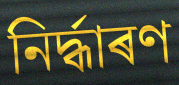
নিৰ্দ্ধাৰণ